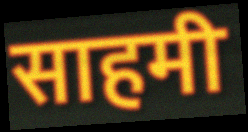
साहमी